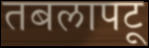
तबलापटू